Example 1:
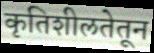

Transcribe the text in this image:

कृतिशीलतेतून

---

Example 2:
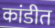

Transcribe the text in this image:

कांडीत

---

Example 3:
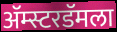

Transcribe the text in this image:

ॲम्स्टरडॅमला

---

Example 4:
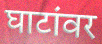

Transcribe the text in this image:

घाटांवर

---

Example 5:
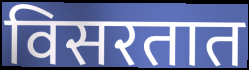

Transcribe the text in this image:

विसरतात